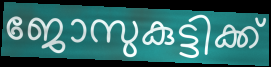
ജോസുകുട്ടിക്ക്